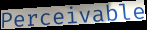
Perceivable